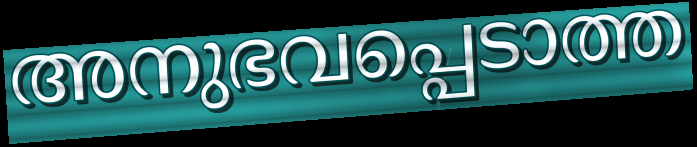
അനുഭവപ്പെടാത്ത